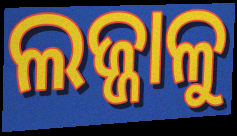
ଲଜ୍ଜାଳୁ